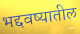
भद्दवष्यातील